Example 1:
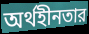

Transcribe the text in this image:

অর্থহীনতার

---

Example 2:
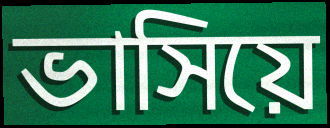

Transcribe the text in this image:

ভাসিয়ে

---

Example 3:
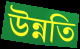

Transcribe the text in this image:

উন্নতি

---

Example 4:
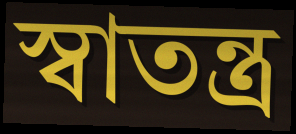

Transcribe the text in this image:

স্বাতন্ত্র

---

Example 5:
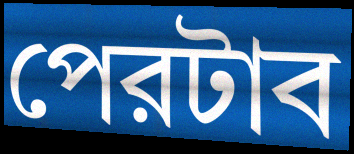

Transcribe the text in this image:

পেরটাব